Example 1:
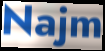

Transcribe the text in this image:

Najm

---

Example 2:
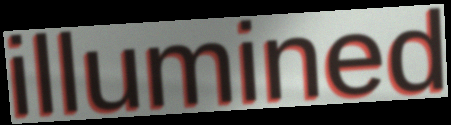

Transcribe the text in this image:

illumined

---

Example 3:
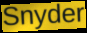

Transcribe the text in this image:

Snyder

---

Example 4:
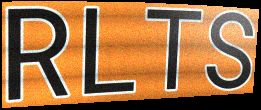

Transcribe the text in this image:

RLTS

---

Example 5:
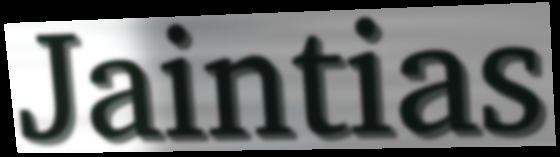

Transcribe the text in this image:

Jaintias